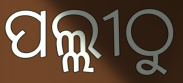
ପଲ୍ଲୀଠୁ